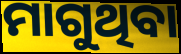
ମାଗୁଥିବା